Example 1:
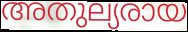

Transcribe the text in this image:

അതുല്യരായ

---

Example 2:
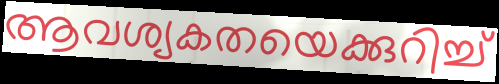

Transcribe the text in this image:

ആവശ്യകതയെക്കുറിച്ച്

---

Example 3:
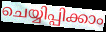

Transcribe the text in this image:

ചെയ്യിപ്പിക്കാം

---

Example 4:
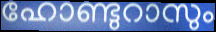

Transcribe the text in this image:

ഹോണ്ടുറാസും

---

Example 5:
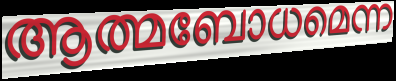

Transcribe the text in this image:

ആത്മബോധമെന്ന